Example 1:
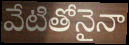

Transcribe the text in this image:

వేటితోనైనా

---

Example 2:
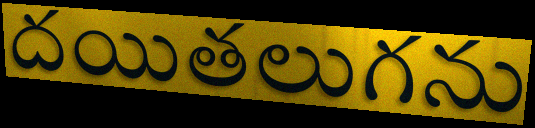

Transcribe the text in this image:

దయితలుగను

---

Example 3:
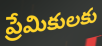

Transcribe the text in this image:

ప్రేమికులకు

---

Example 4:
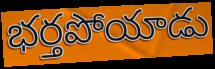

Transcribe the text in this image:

భర్తపోయాడు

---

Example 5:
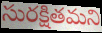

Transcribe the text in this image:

సురక్షితమని